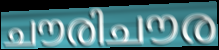
ചൗരിചൗര